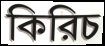
কিরিচ